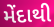
મેંદાથી